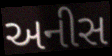
અનીસ